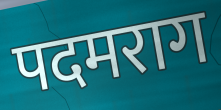
पदमराग